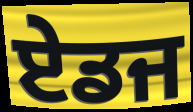
ਏਡਜ